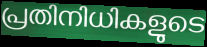
പ്രതിനിധികളുടെ